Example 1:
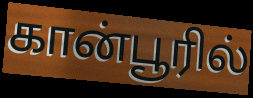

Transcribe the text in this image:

கான்பூரில்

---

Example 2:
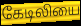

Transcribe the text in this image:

கேடிலியை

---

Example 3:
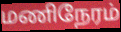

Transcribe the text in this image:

மணிநேரம்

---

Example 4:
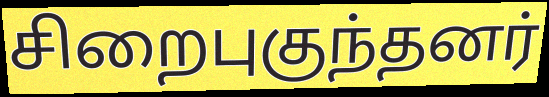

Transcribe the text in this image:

சிறைபுகுந்தனர்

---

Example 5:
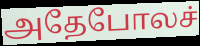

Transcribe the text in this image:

அதேபோலச்